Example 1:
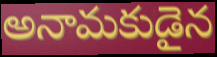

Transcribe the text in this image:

అనామకుడైన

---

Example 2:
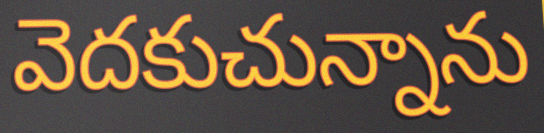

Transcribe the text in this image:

వెదకుచున్నాను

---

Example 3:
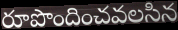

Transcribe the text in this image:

రూపొందించవలసిన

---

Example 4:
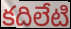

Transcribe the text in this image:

కదిలేటి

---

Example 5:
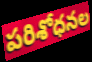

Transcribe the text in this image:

పరిశోధనల